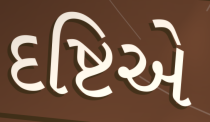
દષ્ટિએ